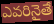
ఎవరినైతే